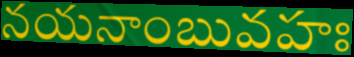
నయనాంబువహః